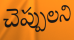
చెప్పులని